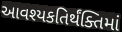
આવશ્યકતિર્થંક્તિમાં